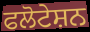
ਫਲੋਟੇਸ਼ਨ